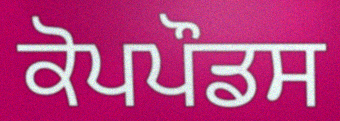
ਕੋਪਪੌਡਸ